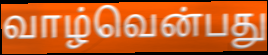
வாழ்வென்பது